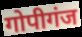
गोपीगंज